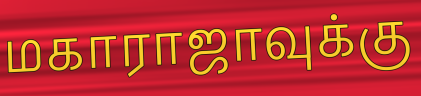
மகாராஜாவுக்கு